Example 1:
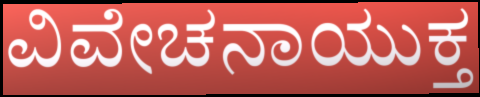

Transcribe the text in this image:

ವಿವೇಚನಾಯುಕ್ತ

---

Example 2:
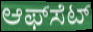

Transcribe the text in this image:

ಆಫ್‍ಸೆಟ್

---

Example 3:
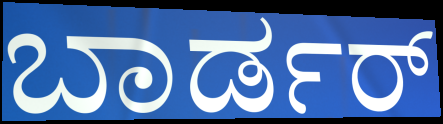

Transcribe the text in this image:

ಬಾರ್ಡರ್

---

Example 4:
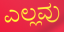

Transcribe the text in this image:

ಎಲ್ಲವು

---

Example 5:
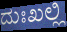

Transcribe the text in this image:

ದುಃಖಲ್ಲಿ